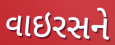
વાઇરસને